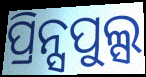
ପ୍ରିନ୍ସପୁଲ୍ସ